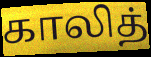
காலித்